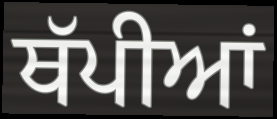
ਥੱਪੀਆਂ